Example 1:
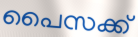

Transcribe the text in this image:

പൈസക്ക്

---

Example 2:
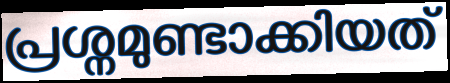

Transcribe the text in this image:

പ്രശ്നമുണ്ടാക്കിയത്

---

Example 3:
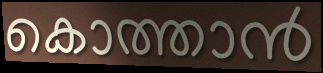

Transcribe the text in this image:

കൊത്താൻ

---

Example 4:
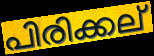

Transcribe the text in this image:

പിരിക്കല്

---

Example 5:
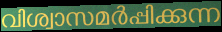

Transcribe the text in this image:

വിശ്വാസമർപ്പിക്കുന്ന